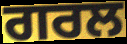
ਗਰਲ